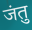
जंतु